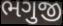
ભગુજી